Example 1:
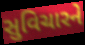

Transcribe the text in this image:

સુવિચારને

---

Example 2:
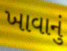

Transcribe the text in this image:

ખાવાનું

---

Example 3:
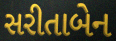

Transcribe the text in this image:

સરીતાબેન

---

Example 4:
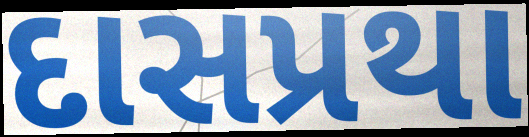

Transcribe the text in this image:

દાસપ્રથા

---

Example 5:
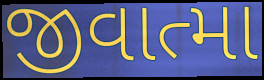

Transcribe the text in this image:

જીવાત્મા